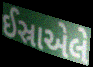
ઈસ્રાએલે